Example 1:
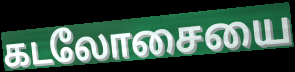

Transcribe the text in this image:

கடலோசையை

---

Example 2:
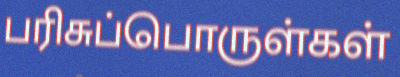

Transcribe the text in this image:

பரிசுப்பொருள்கள்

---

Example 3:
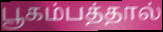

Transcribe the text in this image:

பூகம்பத்தால்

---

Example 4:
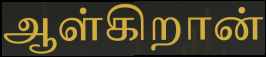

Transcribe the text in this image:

ஆள்கிறான்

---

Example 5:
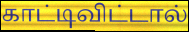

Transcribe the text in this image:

காட்டிவிட்டால்